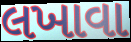
લખાવા